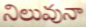
నిలువునా